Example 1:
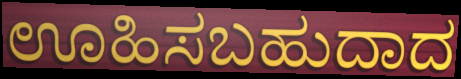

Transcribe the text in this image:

ಊಹಿಸಬಹುದಾದ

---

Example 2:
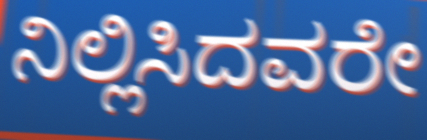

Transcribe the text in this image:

ನಿಲ್ಲಿಸಿದವರೇ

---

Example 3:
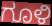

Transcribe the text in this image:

ಗೂಳಿ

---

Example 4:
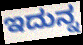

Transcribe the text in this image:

ಇದುನ್ನ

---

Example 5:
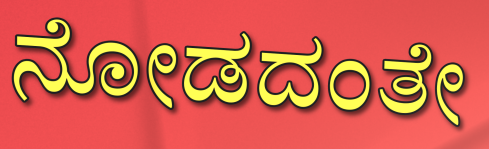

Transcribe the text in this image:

ನೋಡದಂತೇ